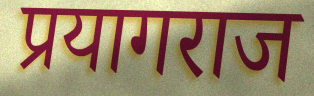
प्रयागराज